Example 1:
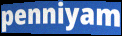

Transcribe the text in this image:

penniyam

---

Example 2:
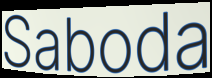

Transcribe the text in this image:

Saboda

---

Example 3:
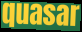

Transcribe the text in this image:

quasar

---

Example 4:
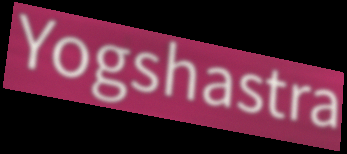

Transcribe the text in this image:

Yogshastra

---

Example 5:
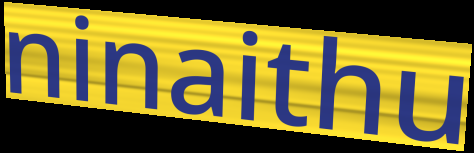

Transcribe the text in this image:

ninaithu